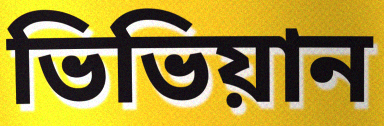
ভিভিয়ান